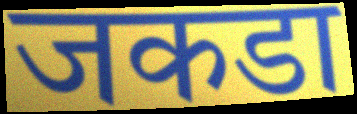
जकडा